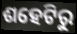
ଶହେଟିରୁ